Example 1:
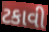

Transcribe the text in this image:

ટકાવી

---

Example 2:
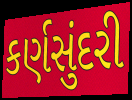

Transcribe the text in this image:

કર્ણસુંદરી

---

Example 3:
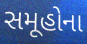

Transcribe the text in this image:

સમૂહોના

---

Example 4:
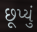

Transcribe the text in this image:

છૂપ્યું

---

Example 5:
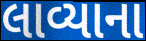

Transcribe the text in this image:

લાવ્યાના